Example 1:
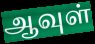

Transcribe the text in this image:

ஆவுள்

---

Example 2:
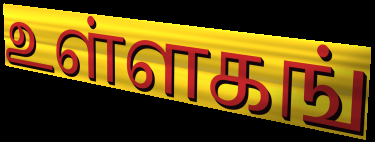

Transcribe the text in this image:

உள்ளகங்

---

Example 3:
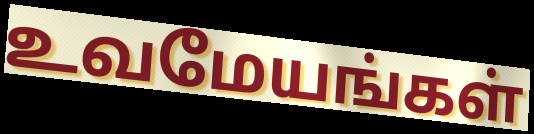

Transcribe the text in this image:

உவமேயங்கள்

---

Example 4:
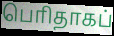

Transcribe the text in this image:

பெரிதாகப்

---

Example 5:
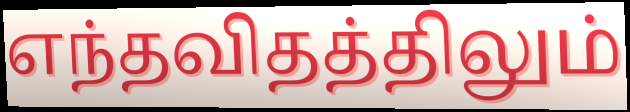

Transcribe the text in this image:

எந்தவிதத்திலும்